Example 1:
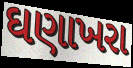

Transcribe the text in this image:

ઘણાખરા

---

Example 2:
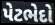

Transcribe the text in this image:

પેટભેદો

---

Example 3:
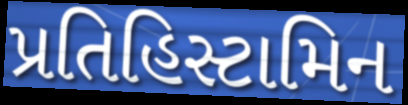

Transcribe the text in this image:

પ્રતિહિસ્ટામિન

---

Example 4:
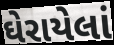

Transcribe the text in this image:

ઘેરાયેલાં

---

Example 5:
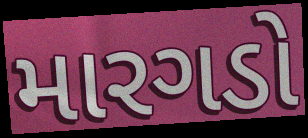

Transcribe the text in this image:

મારગડો